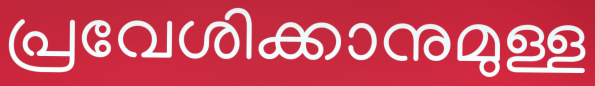
പ്രവേശിക്കാനുമുള്ള